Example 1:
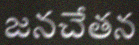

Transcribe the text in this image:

జనచేతన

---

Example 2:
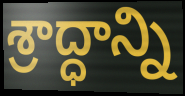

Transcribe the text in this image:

శ్రాద్ధాన్ని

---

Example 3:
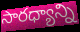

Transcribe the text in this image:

సారధ్యాన్ని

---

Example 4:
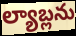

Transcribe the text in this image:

ల్యాబ్లను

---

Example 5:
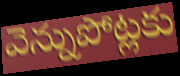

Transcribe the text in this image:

వెన్నుపోట్లకు